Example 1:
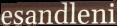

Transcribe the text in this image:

esandleni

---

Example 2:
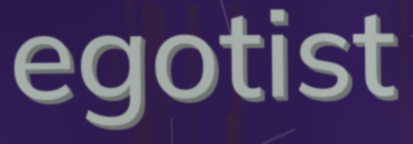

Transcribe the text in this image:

egotist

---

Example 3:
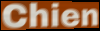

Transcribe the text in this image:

Chien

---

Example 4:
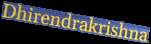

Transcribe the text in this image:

Dhirendrakrishna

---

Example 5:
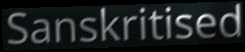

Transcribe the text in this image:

Sanskritised